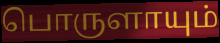
பொருளாயும்